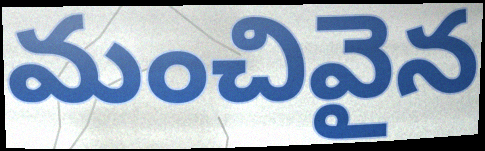
మంచివైన